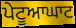
ਪੇਟੂਆਘਾਟ